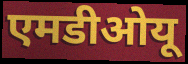
एमडीओयू